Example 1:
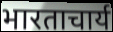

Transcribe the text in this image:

भारताचार्य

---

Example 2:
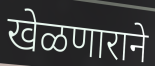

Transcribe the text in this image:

खेळणाराने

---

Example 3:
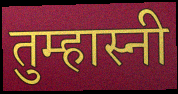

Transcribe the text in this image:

तुम्हास्नी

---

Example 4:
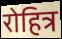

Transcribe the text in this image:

रोहित्र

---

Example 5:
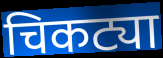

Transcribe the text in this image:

चिकट्या